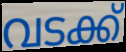
വടക്ക്